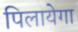
पिलायेगा